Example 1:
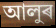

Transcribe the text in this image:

আলুৰ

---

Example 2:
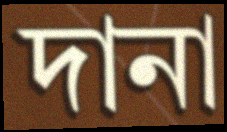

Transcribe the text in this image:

দানা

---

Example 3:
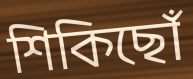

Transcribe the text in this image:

শিকিছোঁ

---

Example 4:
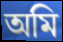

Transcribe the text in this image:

অমি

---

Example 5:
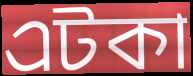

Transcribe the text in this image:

এটকা